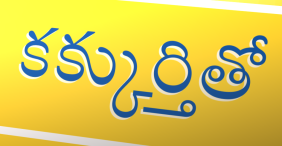
కక్కుర్తితో